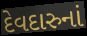
દેવદારુનાં